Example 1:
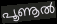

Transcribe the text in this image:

പൂണൂൽ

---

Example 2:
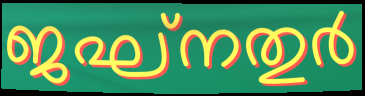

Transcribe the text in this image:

ജഘ്നതുർ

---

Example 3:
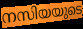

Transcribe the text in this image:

നസിയയുടെ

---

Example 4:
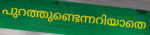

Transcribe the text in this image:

പുറത്തുണ്ടെന്നറിയാതെ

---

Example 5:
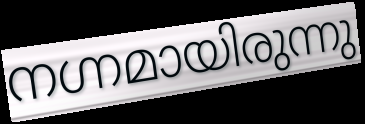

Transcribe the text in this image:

നഗ്നമായിരുന്നു